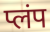
प्लंप